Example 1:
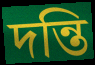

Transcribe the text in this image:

দন্তি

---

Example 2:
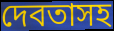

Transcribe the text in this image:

দেবতাসহ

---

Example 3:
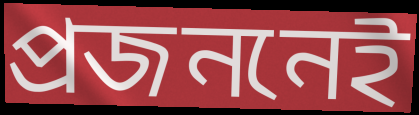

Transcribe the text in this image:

প্রজননেই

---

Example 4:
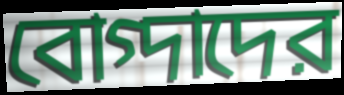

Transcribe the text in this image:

বোগ্দাদের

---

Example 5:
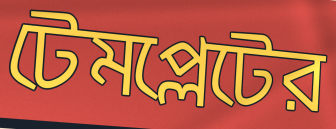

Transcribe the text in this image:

টেমপ্লেটের